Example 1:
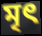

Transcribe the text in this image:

মৃৎ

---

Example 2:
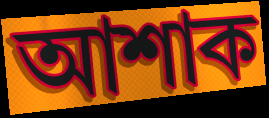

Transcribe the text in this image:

আশাক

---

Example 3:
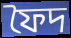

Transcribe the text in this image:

ফৈদ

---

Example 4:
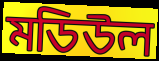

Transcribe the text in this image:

মডিউল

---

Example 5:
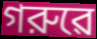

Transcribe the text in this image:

গৰুৱে